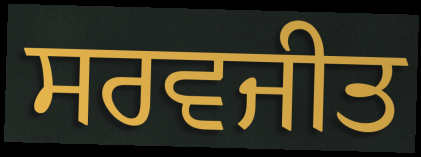
ਸਰਵਜੀਤ